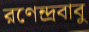
রণেন্দ্রবাবু